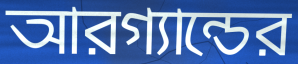
আরগ্যান্ডের